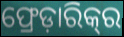
ଫ୍ରେଡ଼ାରିକ୍‍ର